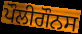
ਪੌਲੀਗੌਨਸ